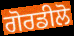
ਗੋਰਡੀਲੋ